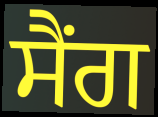
ਸੈਂਗ